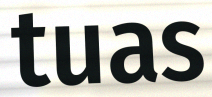
tuas